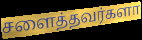
சளைத்தவர்களா